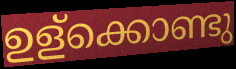
ഉള്ക്കൊണ്ടു